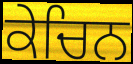
ਕੇਚਿਨ